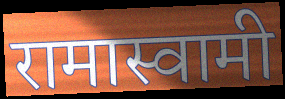
रामास्वामी